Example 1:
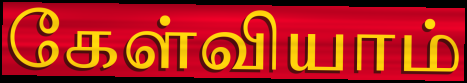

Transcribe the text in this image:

கேள்வியாம்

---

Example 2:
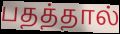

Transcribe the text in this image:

பதத்தால்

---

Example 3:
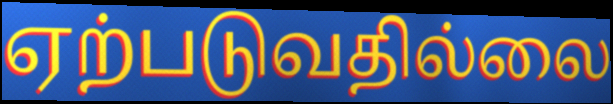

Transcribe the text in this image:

ஏற்படுவதில்லை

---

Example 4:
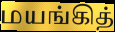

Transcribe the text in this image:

மயங்கித்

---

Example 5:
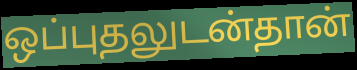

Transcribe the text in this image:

ஒப்புதலுடன்தான்